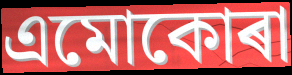
এমোকোৰা